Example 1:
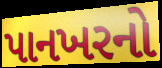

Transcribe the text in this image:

પાનખરનો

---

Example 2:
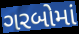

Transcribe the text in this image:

ગરબોમાં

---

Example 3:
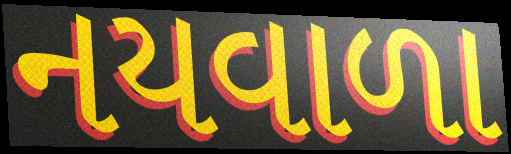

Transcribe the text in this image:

નયવાળા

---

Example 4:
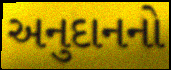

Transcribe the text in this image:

અનુદાનનો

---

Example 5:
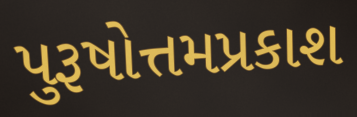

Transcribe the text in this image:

પુરૂષોત્તમપ્રકાશ